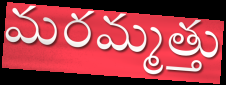
మరమ్మత్తు